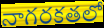
నాగరకతలో